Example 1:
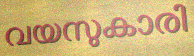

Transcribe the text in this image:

വയസുകാരി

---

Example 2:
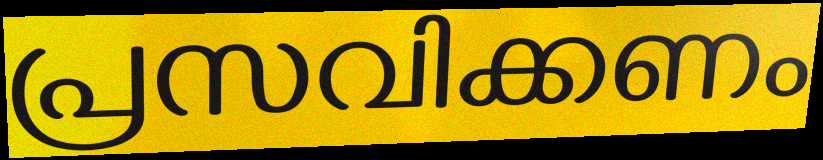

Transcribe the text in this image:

പ്രസവിക്കണം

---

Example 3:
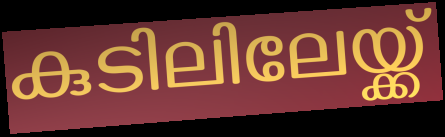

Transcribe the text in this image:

കുടിലിലേയ്ക്ക്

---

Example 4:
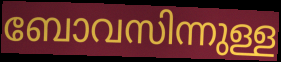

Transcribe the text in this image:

ബോവസിന്നുള്ള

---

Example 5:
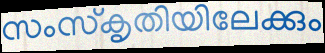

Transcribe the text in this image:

സംസ്കൃതിയിലേക്കും